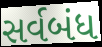
સર્વબંધ